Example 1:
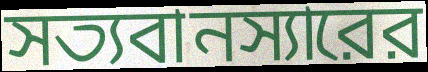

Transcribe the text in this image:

সত্যবানস্যারের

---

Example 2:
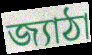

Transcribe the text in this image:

জ্যাঠা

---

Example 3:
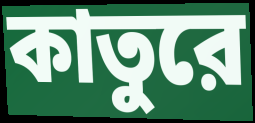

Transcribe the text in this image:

কাতুরে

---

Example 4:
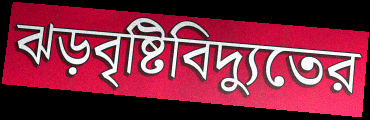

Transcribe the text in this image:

ঝড়বৃষ্টিবিদ্যুতের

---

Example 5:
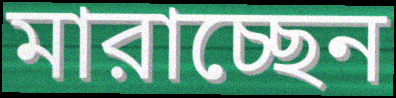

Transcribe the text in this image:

মারাচ্ছেন